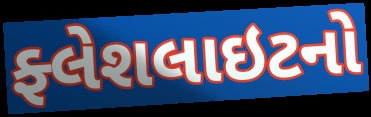
ફ્લેશલાઇટનો